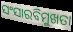
ସଂସାରବିମୁଖତା